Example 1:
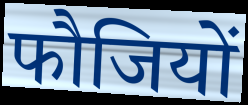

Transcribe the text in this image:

फौजियों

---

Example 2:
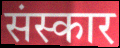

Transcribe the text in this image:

संस्‍कार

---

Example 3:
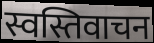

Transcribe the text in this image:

स्वस्तिवाचन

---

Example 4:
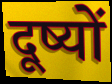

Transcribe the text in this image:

दूष्यों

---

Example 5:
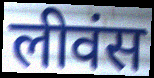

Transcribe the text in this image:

लीवंस